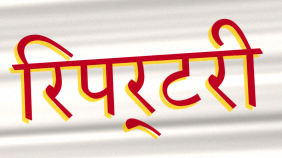
रिपर्टरी